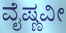
ವೈಷ್ಣವೀ